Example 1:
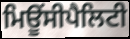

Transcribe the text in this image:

ਮਿਊਂਸੀਪੈਲਿਟੀ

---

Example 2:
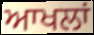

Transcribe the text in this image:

ਆਖਲਾਂ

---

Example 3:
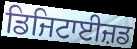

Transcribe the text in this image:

ਡਿਜਿਟਾਈਜ਼ਡ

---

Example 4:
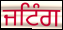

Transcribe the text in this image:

ਜਟਿੰਗ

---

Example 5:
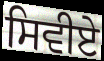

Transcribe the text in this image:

ਸਿਵੀਏ